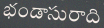
భండాసురాది